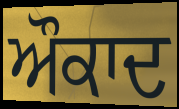
ਔਕਾਦ